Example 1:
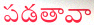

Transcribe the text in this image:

పడతావా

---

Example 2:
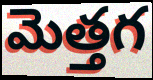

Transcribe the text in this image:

మెత్తగ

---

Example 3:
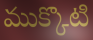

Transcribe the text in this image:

ముక్కొటి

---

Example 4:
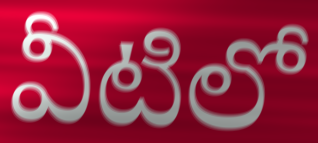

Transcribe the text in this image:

వీటిలో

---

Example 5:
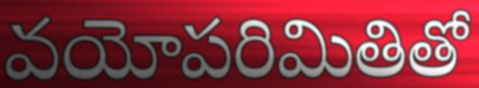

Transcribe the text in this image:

వయోపరిమితితో